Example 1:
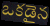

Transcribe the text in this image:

ఒకడైన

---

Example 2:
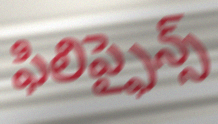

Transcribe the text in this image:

ఫిలిప్ఫైన్స్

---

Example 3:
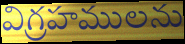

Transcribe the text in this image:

విగ్రహములను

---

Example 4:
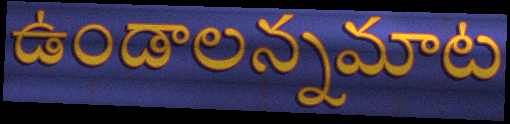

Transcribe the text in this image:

ఉండాలన్నమాట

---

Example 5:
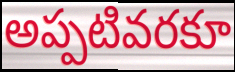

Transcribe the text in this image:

అప్పటివరకూ